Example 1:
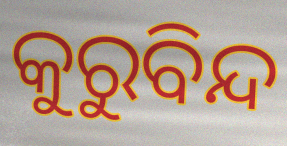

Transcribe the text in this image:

କୁରୁବିନ୍ଦ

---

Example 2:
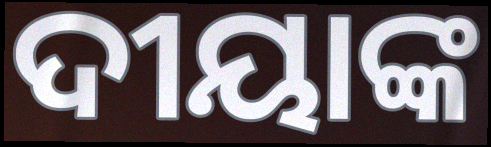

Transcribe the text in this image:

ଦୀୟାଙ୍କ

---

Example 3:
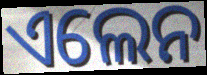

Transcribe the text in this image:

ଏଲେନ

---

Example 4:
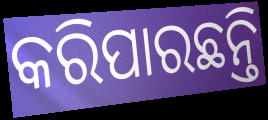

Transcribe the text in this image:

କରିପାରଛନ୍ତି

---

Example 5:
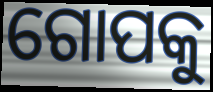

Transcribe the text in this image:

ଗୋପକୁ